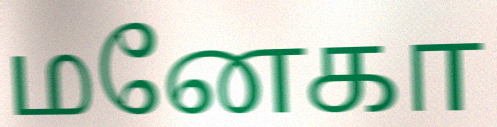
மனேகா